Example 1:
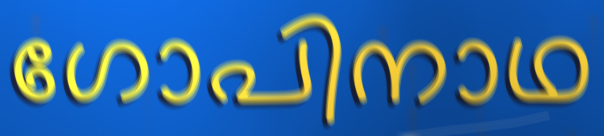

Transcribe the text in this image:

ഗോപിനാഥ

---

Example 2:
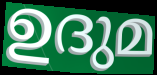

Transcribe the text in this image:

ഉദുമ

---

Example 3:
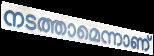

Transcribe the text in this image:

നടത്താമെന്നാണ്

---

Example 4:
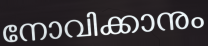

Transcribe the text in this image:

നോവിക്കാനും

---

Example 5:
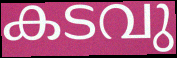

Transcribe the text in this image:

കടവു